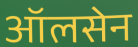
ऑलसेन